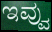
ಇವ್ವು